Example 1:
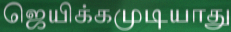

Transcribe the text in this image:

ஜெயிக்கமுடியாது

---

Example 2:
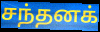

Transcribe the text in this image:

சந்தனக்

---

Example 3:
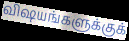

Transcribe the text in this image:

விஷயங்களுக்குக்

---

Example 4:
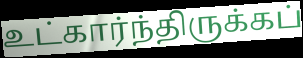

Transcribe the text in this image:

உட்கார்ந்திருக்கப்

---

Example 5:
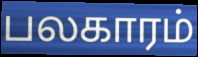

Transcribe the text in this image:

பலகாரம்